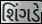
શિંગડે